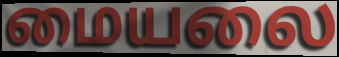
மையலை